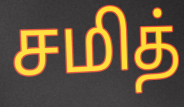
சமித்